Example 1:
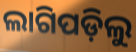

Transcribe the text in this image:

ଲାଗିପଡ଼ିଲୁ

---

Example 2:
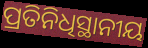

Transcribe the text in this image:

ପ୍ରତିନିଧିସ୍ଥାନୀୟ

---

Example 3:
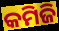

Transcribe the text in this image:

କମିଜି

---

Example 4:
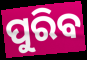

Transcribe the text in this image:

ପୁରିବ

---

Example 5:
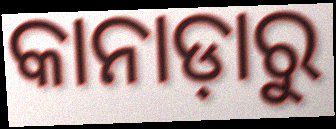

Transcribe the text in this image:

କାନାଡ଼ାରୁ